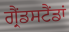
ਗ੍ਰੈਂਡਸਟੈਂਡਾਂ